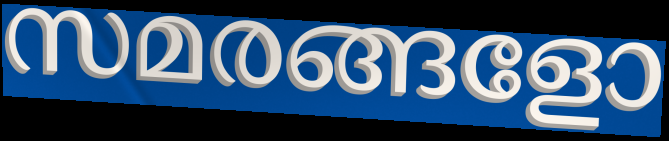
സമരങ്ങളോ